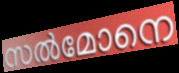
സൽമോനെ